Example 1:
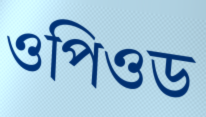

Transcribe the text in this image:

ওপিওড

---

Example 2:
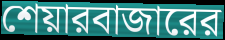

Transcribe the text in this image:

শেয়ারবাজারের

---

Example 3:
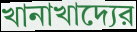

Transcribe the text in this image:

খানাখাদ্যের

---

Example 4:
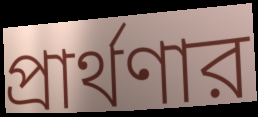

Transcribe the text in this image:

প্রার্থণার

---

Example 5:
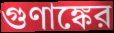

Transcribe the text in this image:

গুণাঙ্কের